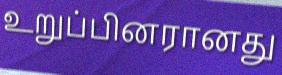
உறுப்பினரானது